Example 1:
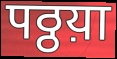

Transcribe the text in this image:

पठ्ठय़ा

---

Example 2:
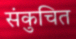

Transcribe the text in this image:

संकुचित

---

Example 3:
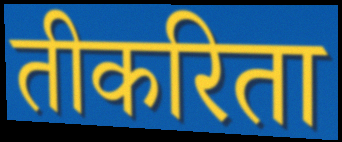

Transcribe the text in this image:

तीकरिता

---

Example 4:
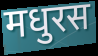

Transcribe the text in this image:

मधुरस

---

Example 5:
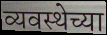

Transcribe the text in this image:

व्यवस्थेच्या